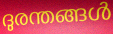
ദുരന്തങ്ങൾ